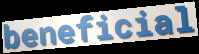
beneficial